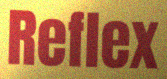
Reflex